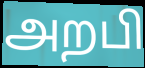
அறபி